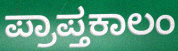
ಪ್ರಾಪ್ತಕಾಲಂ